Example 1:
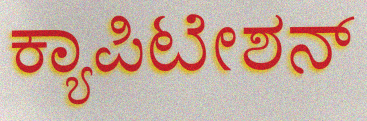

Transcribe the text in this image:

ಕ್ಯಾಪಿಟೇಶನ್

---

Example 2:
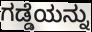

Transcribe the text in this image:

ಗಡ್ಡೆಯನ್ನು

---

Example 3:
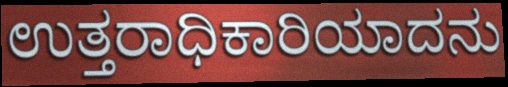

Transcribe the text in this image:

ಉತ್ತರಾಧಿಕಾರಿಯಾದನು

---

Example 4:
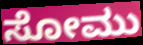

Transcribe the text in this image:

ಸೋಮು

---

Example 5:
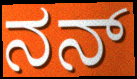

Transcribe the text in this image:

ನನ್